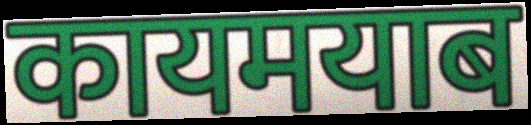
कायमयाब